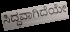
ಸಿದ್ಧವಾಗಿದೆಯೇ